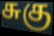
சுகு